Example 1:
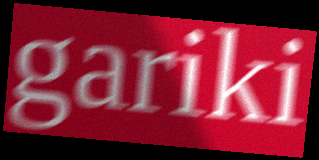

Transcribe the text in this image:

gariki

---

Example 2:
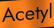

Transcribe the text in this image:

Acetyl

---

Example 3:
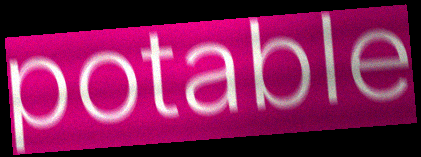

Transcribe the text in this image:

potable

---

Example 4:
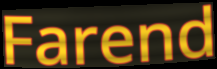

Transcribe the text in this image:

Farend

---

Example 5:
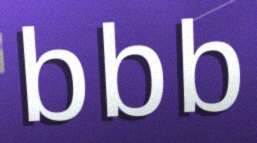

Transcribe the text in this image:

bbb